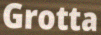
Grotta